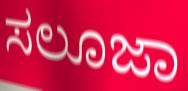
ಸಲೂಜಾ